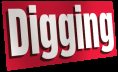
Digging